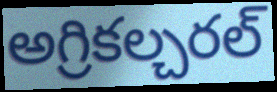
అగ్రికల్చరల్